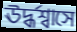
ঊর্দ্ধশ্বাসে